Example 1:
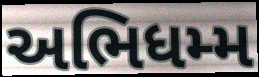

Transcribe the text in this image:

અભિધમ્મ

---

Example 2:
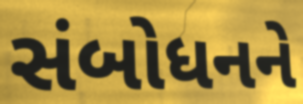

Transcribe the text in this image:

સંબોધનને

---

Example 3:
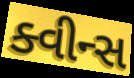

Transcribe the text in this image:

ક્વીન્સ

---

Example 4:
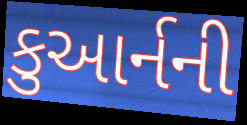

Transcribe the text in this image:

કુઆર્નની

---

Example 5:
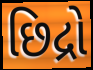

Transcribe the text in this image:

છિદ્રો